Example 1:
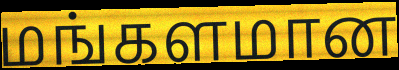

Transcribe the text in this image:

மங்களமான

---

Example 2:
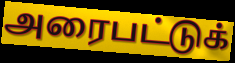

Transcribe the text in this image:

அரைபட்டுக்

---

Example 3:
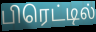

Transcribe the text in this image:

பிரெட்டில்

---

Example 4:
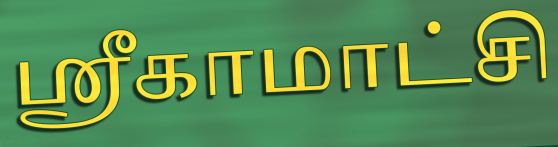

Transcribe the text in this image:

ஸ்ரீகாமாட்சி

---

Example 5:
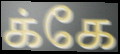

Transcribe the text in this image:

க்கே